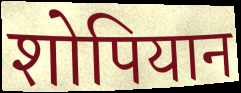
शोपियान